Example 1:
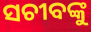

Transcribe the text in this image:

ସଚୀବଙ୍କୁ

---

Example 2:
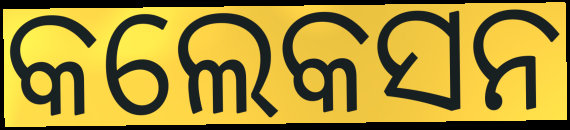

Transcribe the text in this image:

କଲେକସନ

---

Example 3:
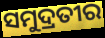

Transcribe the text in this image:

ସମୁଦ୍ରତୀର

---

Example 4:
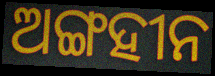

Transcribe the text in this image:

ଅଙ୍ଗହୀନ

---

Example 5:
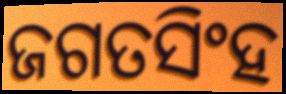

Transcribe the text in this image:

ଜଗତସିଂହ